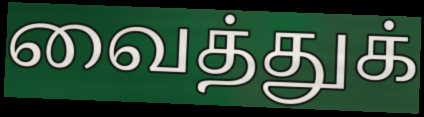
வைத்துக்